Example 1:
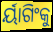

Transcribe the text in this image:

ର୍ୟାଗିଂକୁ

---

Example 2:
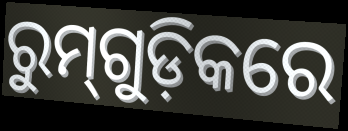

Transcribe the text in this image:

ରୁମ୍‌ଗୁଡ଼ିକରେ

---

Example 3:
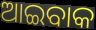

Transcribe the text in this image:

ଆଇବାକ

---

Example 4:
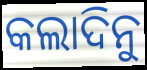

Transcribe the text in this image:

କଲାଦିନୁ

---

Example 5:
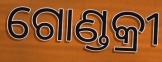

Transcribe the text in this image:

ଗୋଣ୍ଡକ୍ରୀ